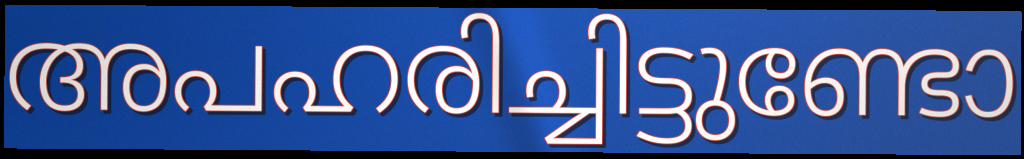
അപഹരിച്ചിട്ടുണ്ടോ